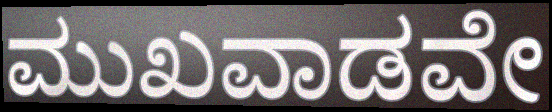
ಮುಖವಾಡವೇ